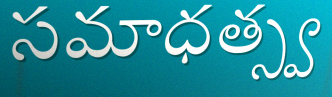
సమాధత్స్వ